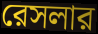
রেসলার